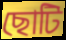
ছোটি